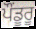
ਪੌਂਡੂਰੂ